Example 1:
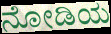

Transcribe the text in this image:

ನೋಡಿಯ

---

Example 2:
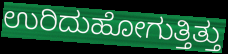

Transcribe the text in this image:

ಉರಿದುಹೋಗುತ್ತಿತ್ತು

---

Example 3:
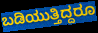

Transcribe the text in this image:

ಬಡಿಯುತ್ತಿದ್ದರೂ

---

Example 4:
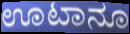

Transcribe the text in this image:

ಊಟಾನೂ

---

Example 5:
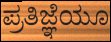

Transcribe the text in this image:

ಪ್ರತಿಜ್ಞೆಯೂ